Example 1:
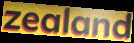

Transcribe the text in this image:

zealand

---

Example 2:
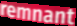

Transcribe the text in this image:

remnant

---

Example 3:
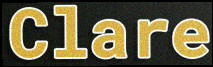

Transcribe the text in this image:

Clare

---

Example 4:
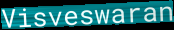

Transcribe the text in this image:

Visveswaran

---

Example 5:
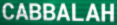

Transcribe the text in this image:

CABBALAH